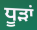
ਧੂੜਾਂ